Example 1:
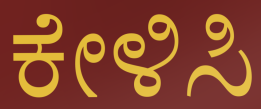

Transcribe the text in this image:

ಕೇಳಿಸಿ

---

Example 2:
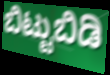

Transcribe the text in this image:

ಬಿಟ್ಟುಬಿಡಿ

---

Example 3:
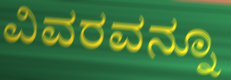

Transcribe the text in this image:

ವಿವರವನ್ನೂ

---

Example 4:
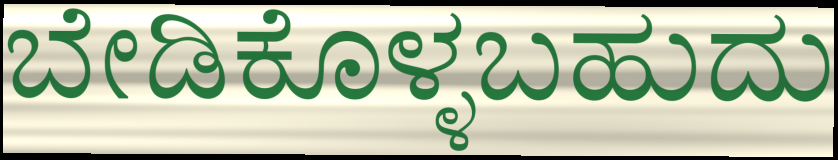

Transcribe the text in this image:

ಬೇಡಿಕೊಳ್ಳಬಹುದು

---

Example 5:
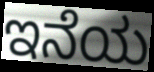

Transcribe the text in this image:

ಇನೆಯ